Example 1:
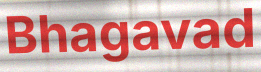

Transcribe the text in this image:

Bhagavad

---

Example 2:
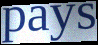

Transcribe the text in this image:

pays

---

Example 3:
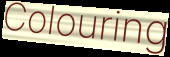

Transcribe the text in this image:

Colouring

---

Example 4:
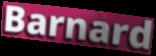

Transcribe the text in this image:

Barnard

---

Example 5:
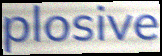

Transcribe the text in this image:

plosive